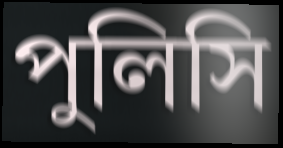
পুলিসি